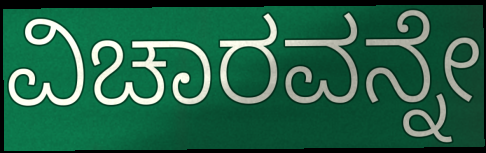
ವಿಚಾರವನ್ನೇ